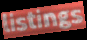
listings